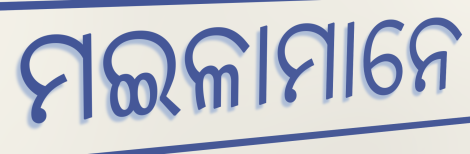
ମଇଳାମାନେ